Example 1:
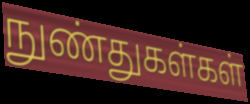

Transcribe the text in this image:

நுண்துகள்கள்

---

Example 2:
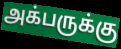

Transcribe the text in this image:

அக்பருக்கு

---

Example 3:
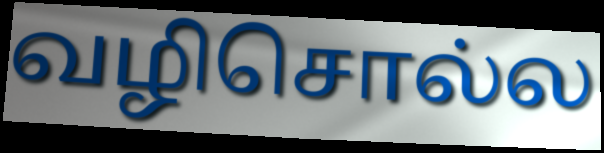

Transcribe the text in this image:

வழிசொல்ல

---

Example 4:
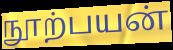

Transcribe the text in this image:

நூற்பயன்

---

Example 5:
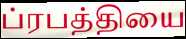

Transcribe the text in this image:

ப்ரபத்தியை